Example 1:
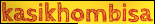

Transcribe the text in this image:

kasikhombisa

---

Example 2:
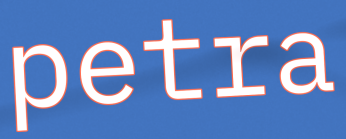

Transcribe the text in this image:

petra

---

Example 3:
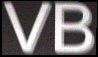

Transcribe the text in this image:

VB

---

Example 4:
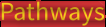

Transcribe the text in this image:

Pathways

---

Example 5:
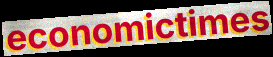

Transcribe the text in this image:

economictimes